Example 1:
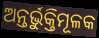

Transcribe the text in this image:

ଅନ୍ତର୍ଭୁକ୍ତିମୂଳକ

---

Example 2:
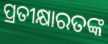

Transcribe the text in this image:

ପ୍ରତୀକ୍ଷାରତଙ୍କ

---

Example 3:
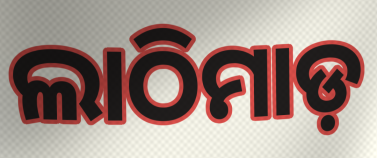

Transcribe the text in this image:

ଲାଠିମାଡ଼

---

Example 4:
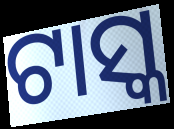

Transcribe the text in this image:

ଟାସ୍କ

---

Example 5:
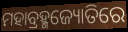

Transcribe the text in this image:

ମହାବ୍ରହ୍ମଜ୍ୟୋତିରେ